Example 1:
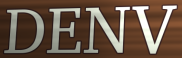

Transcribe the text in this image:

DENV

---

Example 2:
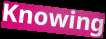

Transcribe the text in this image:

Knowing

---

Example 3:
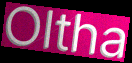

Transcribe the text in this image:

Oltha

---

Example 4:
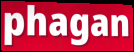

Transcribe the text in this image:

phagan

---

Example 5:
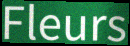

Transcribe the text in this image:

Fleurs